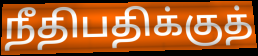
நீதிபதிக்குத்